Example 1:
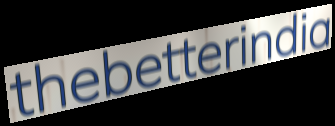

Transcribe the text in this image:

thebetterindia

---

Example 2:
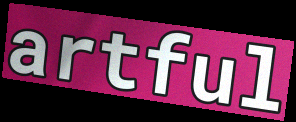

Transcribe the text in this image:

artful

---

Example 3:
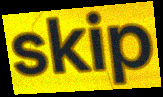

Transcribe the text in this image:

skip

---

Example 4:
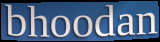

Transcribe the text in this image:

bhoodan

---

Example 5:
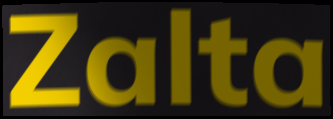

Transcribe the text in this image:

Zalta